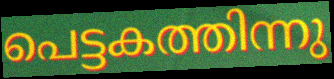
പെട്ടകത്തിന്നു